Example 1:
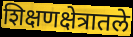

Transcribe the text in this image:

शिक्षणक्षेत्रातले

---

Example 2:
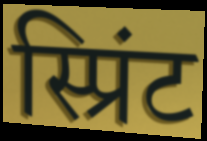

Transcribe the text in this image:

स्प्रिंट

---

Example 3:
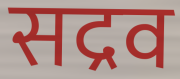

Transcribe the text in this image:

सद्रव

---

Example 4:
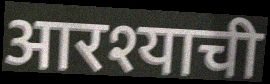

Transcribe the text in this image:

आरश्याची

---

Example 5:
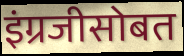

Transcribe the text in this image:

इंग्रजीसोबत